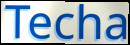
Techa